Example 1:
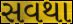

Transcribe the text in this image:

સવથા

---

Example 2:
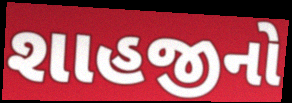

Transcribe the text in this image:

શાહજીનો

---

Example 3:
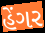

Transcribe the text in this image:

હેંગર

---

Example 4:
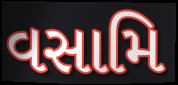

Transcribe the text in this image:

વસામિ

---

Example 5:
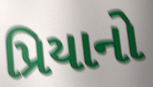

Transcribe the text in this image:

પ્રિયાનો